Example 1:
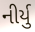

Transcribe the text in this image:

નીર્યુ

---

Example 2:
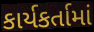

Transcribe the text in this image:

કાર્યકર્તામાં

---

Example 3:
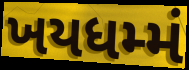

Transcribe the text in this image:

ખયધમ્મં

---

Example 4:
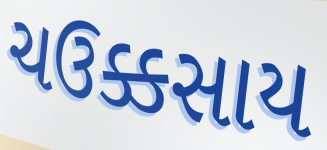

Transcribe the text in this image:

ચઉક્કસાય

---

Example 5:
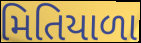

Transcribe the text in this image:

મિતિયાળા